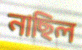
নাছিল